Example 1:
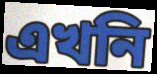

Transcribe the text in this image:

এখনি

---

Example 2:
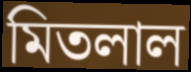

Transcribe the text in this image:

মিতলাল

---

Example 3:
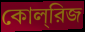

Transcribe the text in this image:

কোল্‌রিজ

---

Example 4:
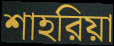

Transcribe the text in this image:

শাহরিয়া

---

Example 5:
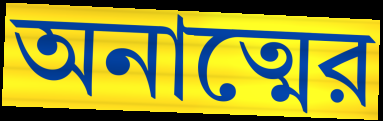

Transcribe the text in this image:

অনাত্মের